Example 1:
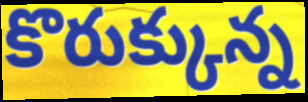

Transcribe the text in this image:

కొరుక్కున్న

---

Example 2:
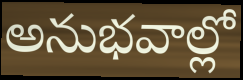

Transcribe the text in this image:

అనుభవాల్లో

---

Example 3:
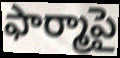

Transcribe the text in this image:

ఫార్మాపై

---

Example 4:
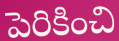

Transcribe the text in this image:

పెరికించి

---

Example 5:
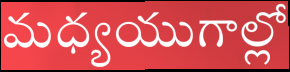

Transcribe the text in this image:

మధ్యయుగాల్లో